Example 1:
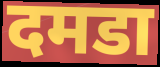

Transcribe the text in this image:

दमडा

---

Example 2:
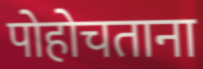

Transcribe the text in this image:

पोहोचताना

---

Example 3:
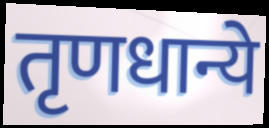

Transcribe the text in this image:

तृणधान्ये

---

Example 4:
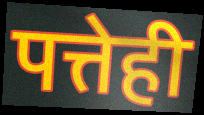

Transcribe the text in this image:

पत्तेही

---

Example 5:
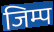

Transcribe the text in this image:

जिम्प